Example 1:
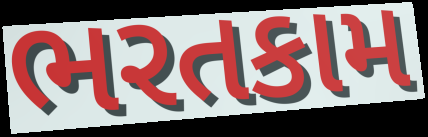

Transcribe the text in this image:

ભરતકામ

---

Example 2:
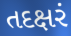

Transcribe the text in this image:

તદક્ષરં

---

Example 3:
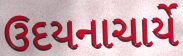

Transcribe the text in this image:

ઉદયનાચાર્યે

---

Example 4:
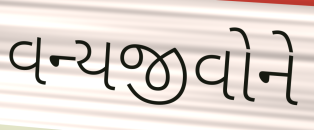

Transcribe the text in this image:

વન્યજીવોને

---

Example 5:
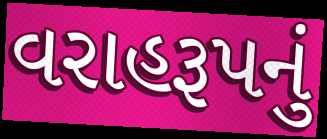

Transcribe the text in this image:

વરાહરૂપનું